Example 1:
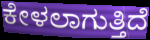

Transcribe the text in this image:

ಕೇಳಲಾಗುತ್ತಿದೆ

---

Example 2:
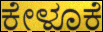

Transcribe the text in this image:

ಕೇಳೂಕೆ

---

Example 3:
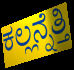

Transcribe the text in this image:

ಕಲ್ಲನ್ನೆತ್ತಿ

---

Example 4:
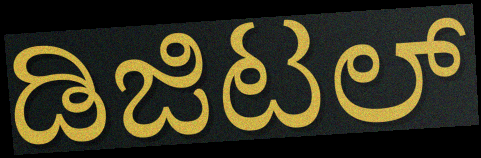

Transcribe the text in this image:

ಡಿಜಿಟಲ್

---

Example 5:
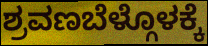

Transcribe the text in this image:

ಶ್ರವಣಬೆಳ್ಗೊಳಕ್ಕೆ